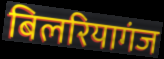
बिलरियागंज